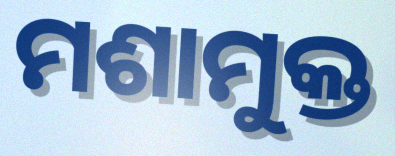
ମଶାମୁକ୍ତ